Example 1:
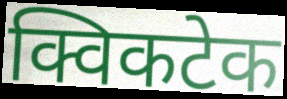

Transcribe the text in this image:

क्विकटेक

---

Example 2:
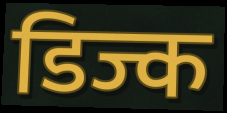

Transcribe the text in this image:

डिज्क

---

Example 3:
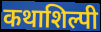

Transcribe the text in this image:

कथाशिल्पी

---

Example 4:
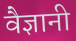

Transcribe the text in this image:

वैज्ञानी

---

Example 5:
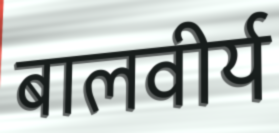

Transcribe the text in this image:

बालवीर्य